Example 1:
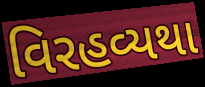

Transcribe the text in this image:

વિરહવ્યથા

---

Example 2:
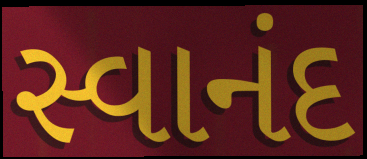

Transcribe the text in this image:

સ્વાનંદ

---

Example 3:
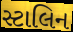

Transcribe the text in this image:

સ્ટાલિન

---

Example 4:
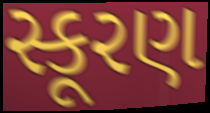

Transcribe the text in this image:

સ્કૂરણ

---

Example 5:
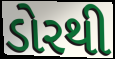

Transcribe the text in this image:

ડોરથી